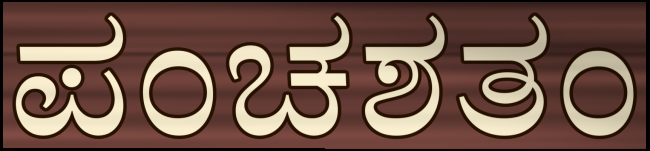
ಪಂಚಶತಂ